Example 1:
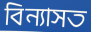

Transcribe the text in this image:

বিন্যাসত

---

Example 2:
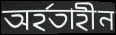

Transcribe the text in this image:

অৰ্হতাহীন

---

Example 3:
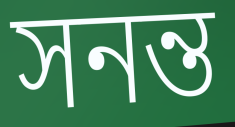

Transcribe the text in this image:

সনন্ত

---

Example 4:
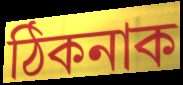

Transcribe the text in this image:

ঠিকনাক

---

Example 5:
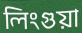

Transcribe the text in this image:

লিংগুয়া